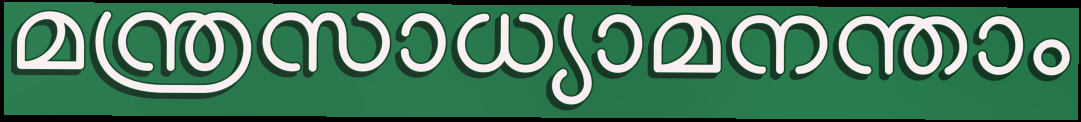
മന്ത്രസാധ്യാമനന്താം